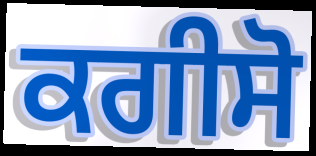
ਕਗੀਸੋ